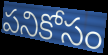
పనికోసం